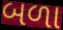
બળા